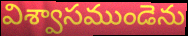
విశ్వాసముండెను